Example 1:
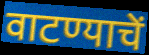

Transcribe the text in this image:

वाटण्याचें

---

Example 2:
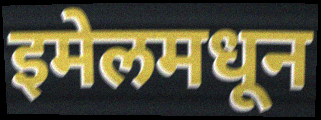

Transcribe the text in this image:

इमेलमधून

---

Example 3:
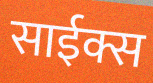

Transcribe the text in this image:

साईक्स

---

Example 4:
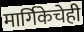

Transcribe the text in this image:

मार्गिकेचेही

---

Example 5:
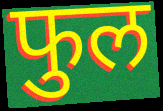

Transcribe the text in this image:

फुल